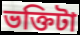
ভক্তিটা